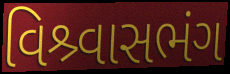
વિશ્ર્વાસભંગ